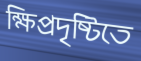
ক্ষিপ্রদৃষ্টিতে